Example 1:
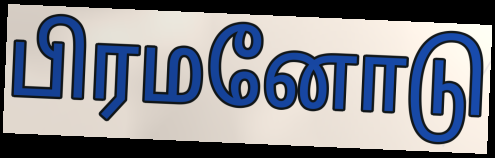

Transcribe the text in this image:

பிரமனோடு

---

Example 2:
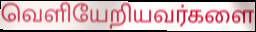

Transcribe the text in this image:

வெளியேறியவர்களை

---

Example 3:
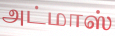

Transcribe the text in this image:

அட்மாஸ்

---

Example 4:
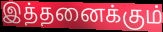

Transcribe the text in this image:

இத்தனைக்கும்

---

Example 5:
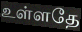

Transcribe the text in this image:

உள்ளதே